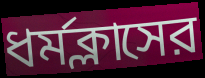
ধর্মক্লাসের